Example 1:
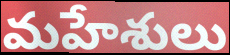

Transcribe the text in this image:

మహేశులు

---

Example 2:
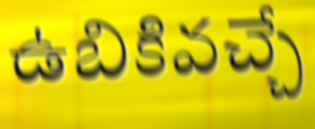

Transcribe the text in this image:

ఉబికివచ్చే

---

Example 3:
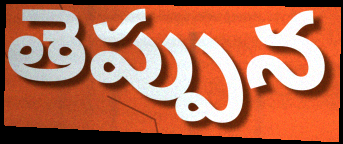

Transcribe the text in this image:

తెప్పున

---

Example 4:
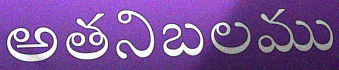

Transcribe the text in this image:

అతనిబలము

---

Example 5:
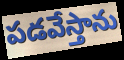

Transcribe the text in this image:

పడవేస్తాను